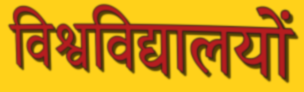
विश्वविद्यालयों